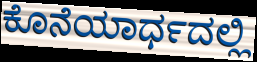
ಕೊನೆಯಾರ್ಧದಲ್ಲಿ